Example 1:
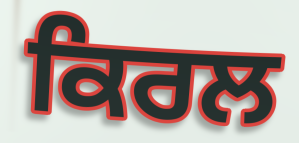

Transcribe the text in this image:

ਕਿਰਲ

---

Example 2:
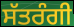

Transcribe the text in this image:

ਸੱਤਰੰਗੀ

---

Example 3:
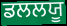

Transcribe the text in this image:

ਡਲਲਯੂ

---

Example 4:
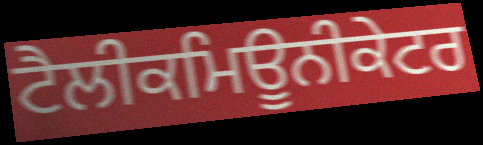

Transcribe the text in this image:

ਟੈਲੀਕਮਿਊਨੀਕੇਟਰ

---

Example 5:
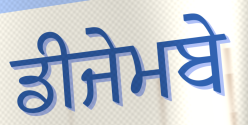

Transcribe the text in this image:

ਡੀਜੇਮਬੇ